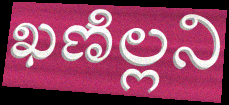
ఖణిల్లని